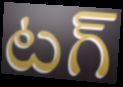
టగ్